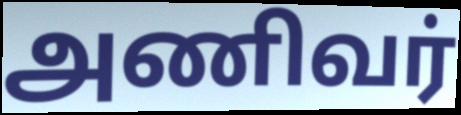
அணிவர்